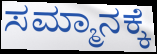
ಸಮ್ಮಾನಕ್ಕೆ